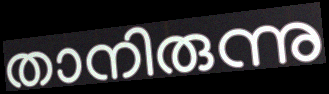
താനിരുന്നു